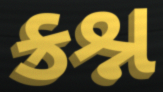
ક્રશ્ન